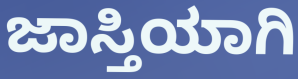
ಜಾಸ್ತಿಯಾಗಿ